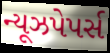
ન્યૂઝપેપર્સ